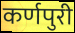
कर्णपुरी